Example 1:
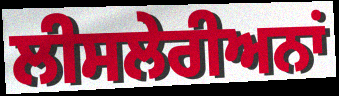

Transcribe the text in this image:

ਲੀਸਲੇਰੀਅਨਾਂ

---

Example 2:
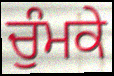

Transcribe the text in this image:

ਚੁੰਮਕੇ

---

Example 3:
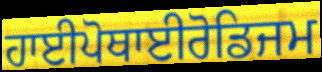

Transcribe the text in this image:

ਹਾਈਪੋਥਾਈਰੋਡਿਜਮ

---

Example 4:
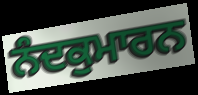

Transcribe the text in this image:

ਨੰਦਕੁਮਾਰਨ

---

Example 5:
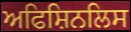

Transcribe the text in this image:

ਅਫਿਸ਼ਿਨਲਿਸ